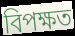
বিপক্ষত